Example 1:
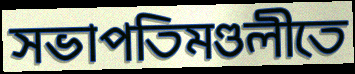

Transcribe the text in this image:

সভাপতিমণ্ডলীতে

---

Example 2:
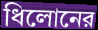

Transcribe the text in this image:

ধিলোনের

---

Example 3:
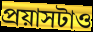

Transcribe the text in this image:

প্রয়াসটাও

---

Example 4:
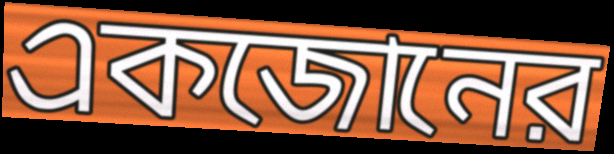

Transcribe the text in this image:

একজোনের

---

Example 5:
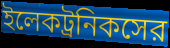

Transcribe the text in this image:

ইলেকট্রনিকসের